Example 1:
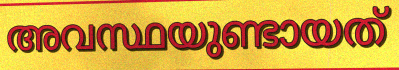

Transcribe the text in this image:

അവസ്ഥയുണ്ടായത്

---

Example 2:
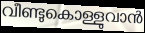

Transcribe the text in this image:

വീണ്ടുകൊള്ളുവാൻ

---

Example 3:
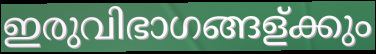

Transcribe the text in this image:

ഇരുവിഭാഗങ്ങള്ക്കും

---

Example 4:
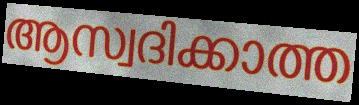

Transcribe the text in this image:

ആസ്വദിക്കാത്ത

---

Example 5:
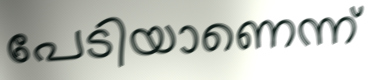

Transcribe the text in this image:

പേടിയാണെന്ന്